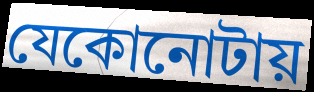
যেকোনোটায়